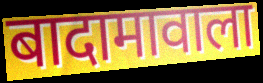
बादामावाला